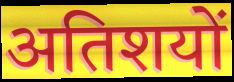
अतिशयों